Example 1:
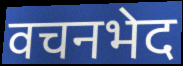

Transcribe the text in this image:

वचनभेद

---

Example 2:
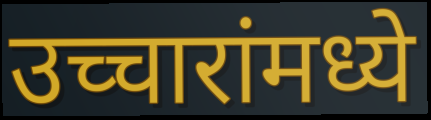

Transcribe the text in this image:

उच्चारांमध्ये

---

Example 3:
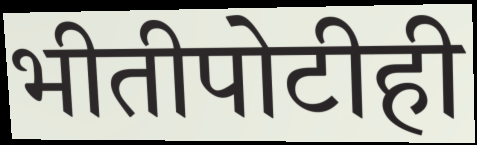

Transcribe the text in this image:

भीतीपोटीही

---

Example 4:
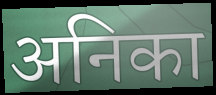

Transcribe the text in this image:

अनिका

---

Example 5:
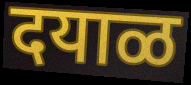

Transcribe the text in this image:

दयाळ